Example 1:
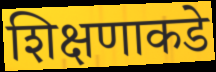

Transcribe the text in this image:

शिक्षणाकडे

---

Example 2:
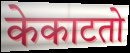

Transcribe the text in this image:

केकाटतो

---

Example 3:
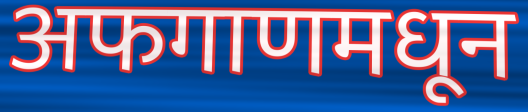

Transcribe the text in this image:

अफगाणमधून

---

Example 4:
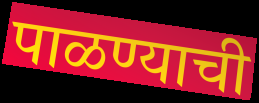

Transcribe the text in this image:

पाळण्याची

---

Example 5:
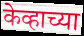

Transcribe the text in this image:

केव्हाच्या